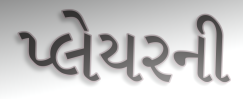
પ્લેયરની